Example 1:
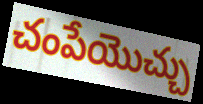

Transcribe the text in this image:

చంపేయొచ్చు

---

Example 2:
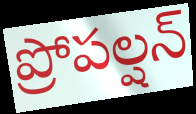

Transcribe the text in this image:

ప్రోపల్షన్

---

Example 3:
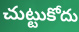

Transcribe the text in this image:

చుట్టుకోదు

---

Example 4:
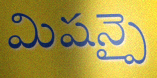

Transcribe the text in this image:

మిషన్పై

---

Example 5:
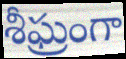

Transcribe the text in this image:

శీఘ్రంగా